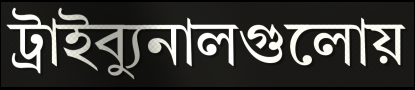
ট্রাইব্যুনালগুলোয়